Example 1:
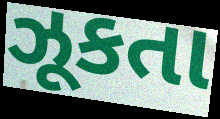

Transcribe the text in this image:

ઝૂકતા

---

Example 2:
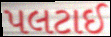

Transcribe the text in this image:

પલટાઈ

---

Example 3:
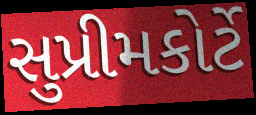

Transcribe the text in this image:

સુપ્રીમકોર્ટે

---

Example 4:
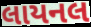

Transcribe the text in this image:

લાયનલ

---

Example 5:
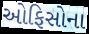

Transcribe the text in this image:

ઓફિસોના